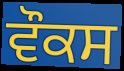
ਵੌਕਸ